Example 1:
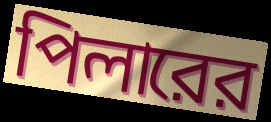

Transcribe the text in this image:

পিলারের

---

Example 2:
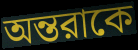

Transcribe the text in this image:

অন্তরাকে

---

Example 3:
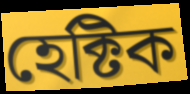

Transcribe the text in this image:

হেক্টিক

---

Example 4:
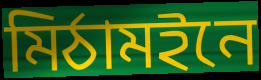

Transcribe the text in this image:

মিঠামইনে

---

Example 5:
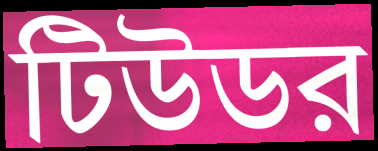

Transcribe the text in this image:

টিউডর